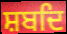
ਸ਼ਬਦਿ